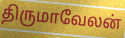
திருமாவேலன்